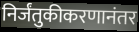
निर्जंतुकीकरणानंतर